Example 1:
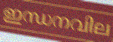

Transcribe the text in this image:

ഇന്ധനവില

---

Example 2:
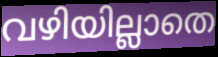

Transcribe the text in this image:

വഴിയില്ലാതെ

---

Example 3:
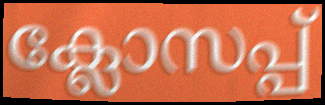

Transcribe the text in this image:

ക്ലോസപ്പ്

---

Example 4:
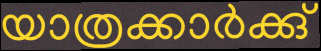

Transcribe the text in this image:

യാത്രക്കാർക്കു്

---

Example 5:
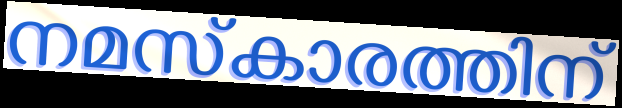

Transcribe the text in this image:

നമസ്‌കാരത്തിന്